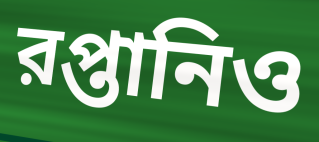
রপ্তানিও